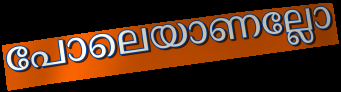
പോലെയാണല്ലോ